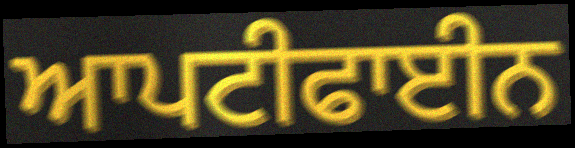
ਆਪਟੀਫਾਈਨ